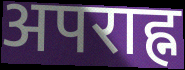
अपराह्न